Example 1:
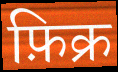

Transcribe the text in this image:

फ़िक्र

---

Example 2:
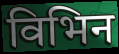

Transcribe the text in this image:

विभिन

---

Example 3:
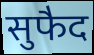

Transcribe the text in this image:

सुफैद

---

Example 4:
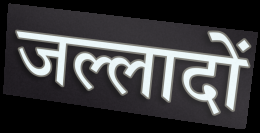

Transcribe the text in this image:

जल्लादों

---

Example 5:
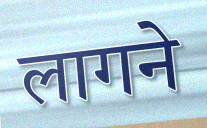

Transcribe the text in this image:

लागने